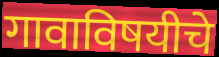
गावाविषयीचे